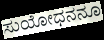
ಸುಯೋಧನನೂ